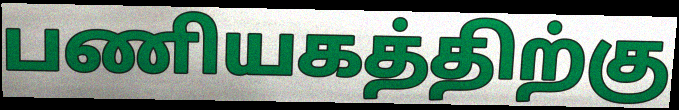
பணியகத்திற்கு